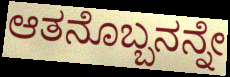
ಆತನೊಬ್ಬನನ್ನೇ